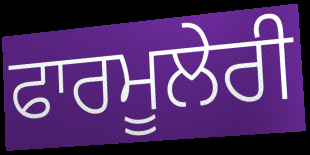
ਫਾਰਮੂਲੇਰੀ